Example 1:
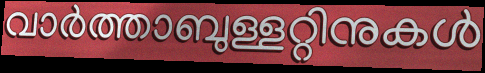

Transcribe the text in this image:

വാർത്താബുള്ളറ്റിനുകൾ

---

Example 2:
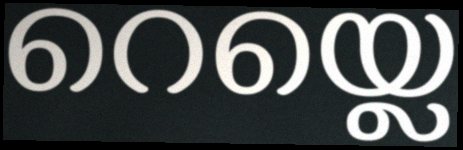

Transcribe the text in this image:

റെയ്ലെ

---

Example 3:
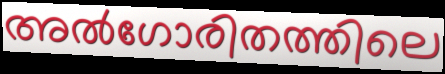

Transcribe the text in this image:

അൽഗോരിതത്തിലെ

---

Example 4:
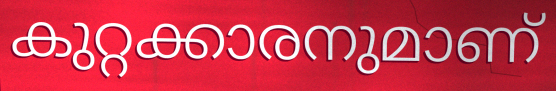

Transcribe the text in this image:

കുറ്റക്കാരനുമാണ്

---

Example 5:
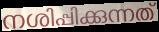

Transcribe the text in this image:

നശിപ്പിക്കുന്നത്